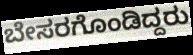
ಬೇಸರಗೊಂಡಿದ್ದರು